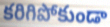
కరిగిపోకుండా